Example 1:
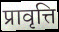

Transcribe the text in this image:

प्रावृत्ति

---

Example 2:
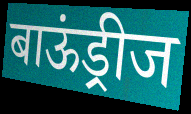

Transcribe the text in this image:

बाऊंड्रीज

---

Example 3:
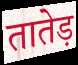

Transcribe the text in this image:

तातेड़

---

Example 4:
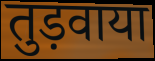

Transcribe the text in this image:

तुड़वाया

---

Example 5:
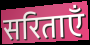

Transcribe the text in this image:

सरिताएँ